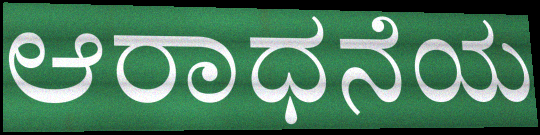
ಆರಾಧನೆಯ